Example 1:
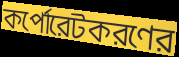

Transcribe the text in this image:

কর্পোরেটকরণের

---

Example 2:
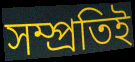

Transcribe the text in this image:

সম্প্রতিই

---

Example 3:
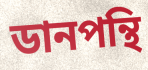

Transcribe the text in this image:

ডানপন্থি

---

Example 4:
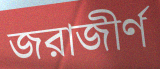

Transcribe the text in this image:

জরাজীর্ণ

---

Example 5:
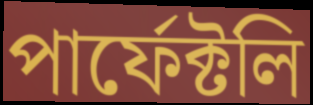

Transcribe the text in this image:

পার্ফেক্টলি